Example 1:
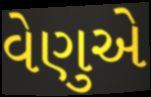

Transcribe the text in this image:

વેણુએ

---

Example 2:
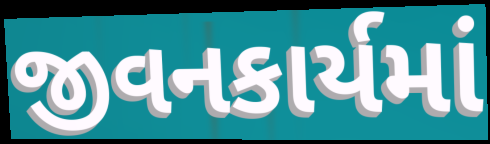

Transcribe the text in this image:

જીવનકાર્યમાં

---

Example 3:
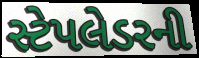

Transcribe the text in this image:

સ્ટેપલેડરની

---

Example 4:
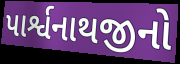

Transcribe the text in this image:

પાર્શ્વનાથજીનો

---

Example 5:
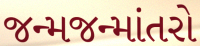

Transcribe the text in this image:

જન્મજન્માંતરો